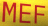
MEF